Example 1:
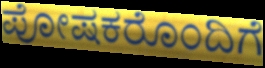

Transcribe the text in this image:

ಪೋಷಕರೊಂದಿಗೆ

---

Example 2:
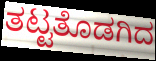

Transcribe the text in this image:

ತಟ್ಟತೊಡಗಿದ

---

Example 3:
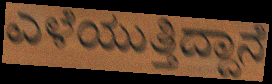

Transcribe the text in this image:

ಎಳೆಯುತ್ತಿದ್ದಾನೆ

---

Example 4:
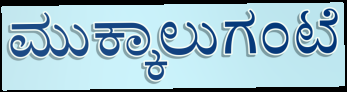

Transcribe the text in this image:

ಮುಕ್ಕಾಲುಗಂಟೆ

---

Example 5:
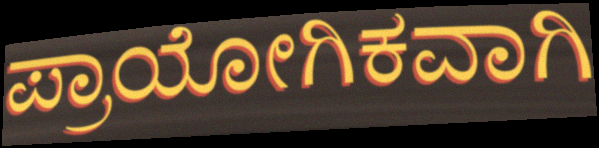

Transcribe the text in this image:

ಪ್ರಾಯೋಗಿಕವಾಗಿ